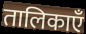
तालिकाएँ